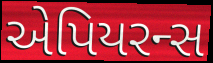
એપિયરન્સ